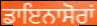
ਡਾਇਨਾਸੋਰਾਂ